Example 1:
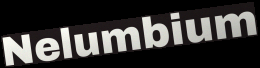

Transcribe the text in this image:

Nelumbium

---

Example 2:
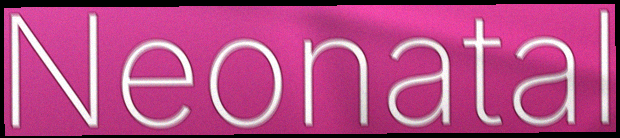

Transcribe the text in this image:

Neonatal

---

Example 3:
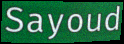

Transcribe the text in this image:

Sayoud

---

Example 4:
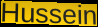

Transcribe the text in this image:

Hussein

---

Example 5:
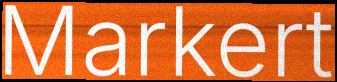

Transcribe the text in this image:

Markert